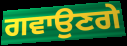
ਗਵਾਉਣਗੇ